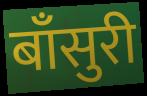
बाँसुरी